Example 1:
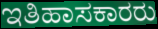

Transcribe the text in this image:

ಇತಿಹಾಸಕಾರರು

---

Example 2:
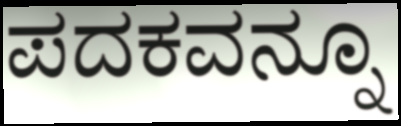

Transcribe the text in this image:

ಪದಕವನ್ನೂ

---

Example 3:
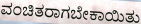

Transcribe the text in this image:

ವಂಚಿತರಾಗಬೇಕಾಯಿತು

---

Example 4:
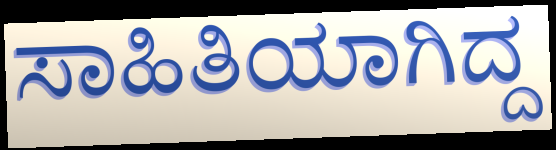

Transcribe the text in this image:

ಸಾಹಿತಿಯಾಗಿದ್ದ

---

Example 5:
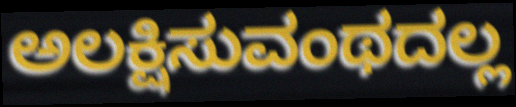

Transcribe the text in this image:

ಅಲಕ್ಷಿಸುವಂಥದಲ್ಲ